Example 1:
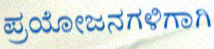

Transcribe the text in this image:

ಪ್ರಯೋಜನಗಳಿಗಾಗಿ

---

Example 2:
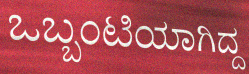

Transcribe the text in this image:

ಒಬ್ಬಂಟಿಯಾಗಿದ್ದ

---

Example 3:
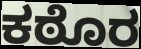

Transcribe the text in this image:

ಕಠೊರ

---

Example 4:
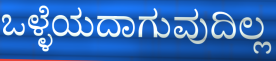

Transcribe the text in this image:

ಒಳ್ಳೆಯದಾಗುವುದಿಲ್ಲ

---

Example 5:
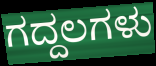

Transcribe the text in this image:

ಗದ್ದಲಗಳು